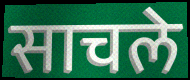
साचले